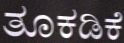
ತೂಕಡಿಕೆ